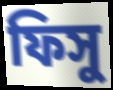
ফিসু